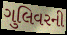
ગુલિવરની